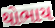
થોભાય